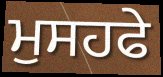
ਮੁਸਹਫੇ